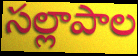
సల్లాపాల